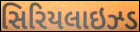
સિરિયલાઇઝ્ડ